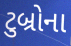
ટુબ્રોના